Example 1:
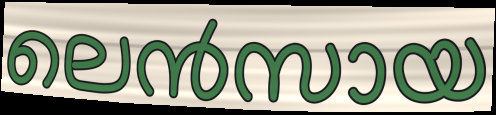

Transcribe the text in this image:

ലെൻസായ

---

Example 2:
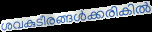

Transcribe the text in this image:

ശവകുടീരങ്ങൾക്കരികിൽ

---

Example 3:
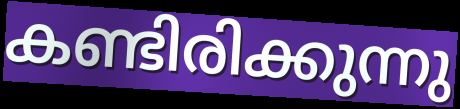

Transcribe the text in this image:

കണ്ടിരിക്കുന്നു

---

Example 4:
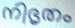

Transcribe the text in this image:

നിഭൃതം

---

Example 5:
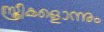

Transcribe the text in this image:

സ്ത്രീകളൊന്നും